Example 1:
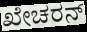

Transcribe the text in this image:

ಖೇಚರನ್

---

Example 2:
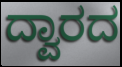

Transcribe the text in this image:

ದ್ವಾರದ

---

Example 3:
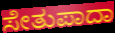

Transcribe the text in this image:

ಸೇತುಪಾದಾ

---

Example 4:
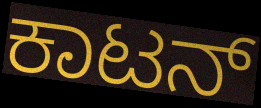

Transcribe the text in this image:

ಕಾಟನ್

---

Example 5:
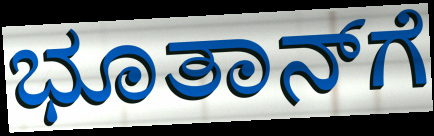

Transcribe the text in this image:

ಭೂತಾನ್‌ಗೆ